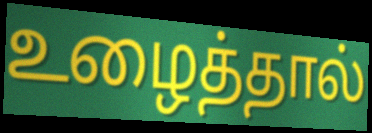
உழைத்தால்